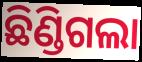
ଛିଣ୍ଡିଗଲା